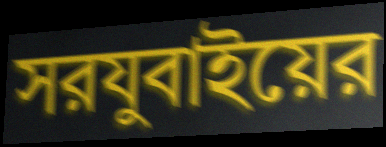
সরযুবাইয়ের